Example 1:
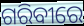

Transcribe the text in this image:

ଗରିବୀରେ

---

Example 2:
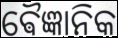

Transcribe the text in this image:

ଵୈଜ୍ଞାନିକ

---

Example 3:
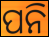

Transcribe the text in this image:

ପନି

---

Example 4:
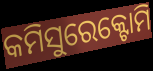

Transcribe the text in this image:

କମିସୁରେକ୍ଟୋମି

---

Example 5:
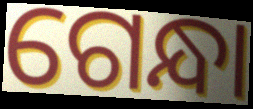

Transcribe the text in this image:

ଗେନ୍ଧା